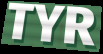
TYR